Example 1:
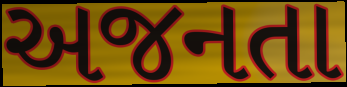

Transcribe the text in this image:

અજનતા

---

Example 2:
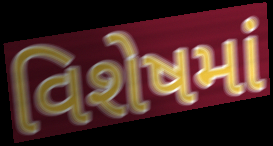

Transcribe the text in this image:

વિશેષમાં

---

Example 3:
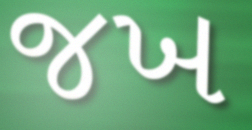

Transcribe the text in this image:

જખ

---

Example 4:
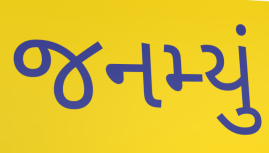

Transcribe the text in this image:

જનમ્યું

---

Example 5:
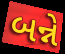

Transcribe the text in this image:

બન્ને